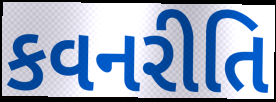
કવનરીતિ